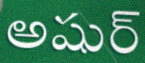
అషుర్